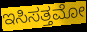
ಇಸಿಸತ್ತಮೋ